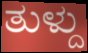
ತುಳ್ದು